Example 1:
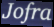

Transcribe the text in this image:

Jofra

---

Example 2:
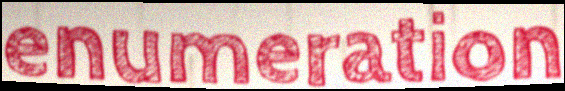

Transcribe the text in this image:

enumeration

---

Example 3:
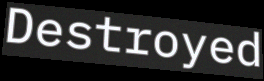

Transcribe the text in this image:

Destroyed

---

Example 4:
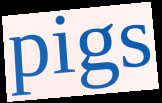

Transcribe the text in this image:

pigs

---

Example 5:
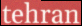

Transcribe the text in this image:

tehran